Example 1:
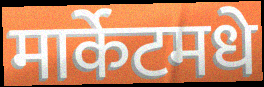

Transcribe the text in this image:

मार्केटमधे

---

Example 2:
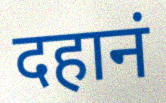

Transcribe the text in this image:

दहानं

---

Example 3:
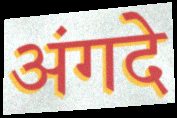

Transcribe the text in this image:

अंगदे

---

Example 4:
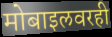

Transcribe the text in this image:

मोबाइलवरही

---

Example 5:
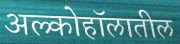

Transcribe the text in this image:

अल्कोहॉलातील